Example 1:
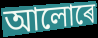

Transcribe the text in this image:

আলোৰে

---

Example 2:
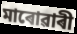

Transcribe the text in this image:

মাৰোৱাৰী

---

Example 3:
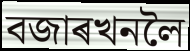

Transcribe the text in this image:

বজাৰখনলৈ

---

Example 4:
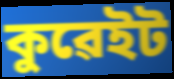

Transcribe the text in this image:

কুৱেইট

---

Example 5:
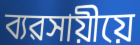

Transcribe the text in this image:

ব্যৱসায়ীয়ে